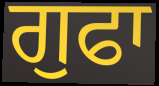
ਗੁਫਾ